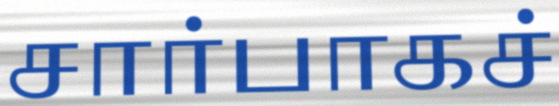
சார்பாகச்